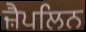
ਜ਼ੈਪਲਿਨ